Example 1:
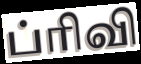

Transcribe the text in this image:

ப்ரிவி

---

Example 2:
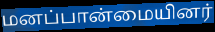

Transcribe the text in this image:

மனப்பான்மையினர்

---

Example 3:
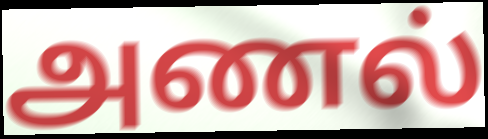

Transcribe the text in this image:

அணல்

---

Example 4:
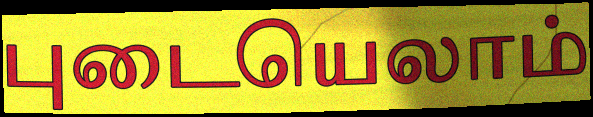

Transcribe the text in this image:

புடையெலாம்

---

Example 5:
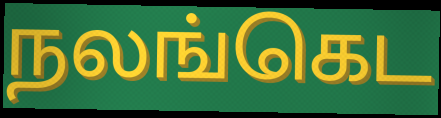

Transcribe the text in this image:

நலங்கெட